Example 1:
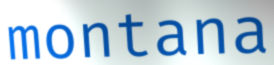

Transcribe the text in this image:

montana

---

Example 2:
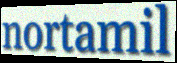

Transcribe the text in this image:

nortamil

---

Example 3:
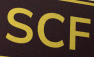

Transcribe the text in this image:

SCF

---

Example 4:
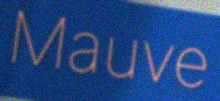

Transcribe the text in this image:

Mauve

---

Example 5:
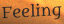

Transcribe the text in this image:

Feeling